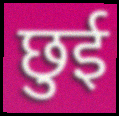
छुई